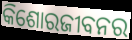
କିଶୋରଜୀବନର